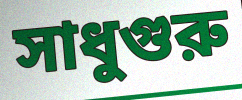
সাধুগুরু